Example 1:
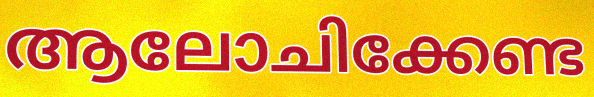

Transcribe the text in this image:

ആലോചിക്കേണ്ട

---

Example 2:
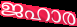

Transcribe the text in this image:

ജഹാര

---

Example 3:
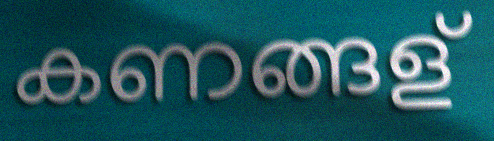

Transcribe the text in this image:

കണങ്ങള്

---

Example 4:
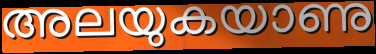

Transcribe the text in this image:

അലയുകയാണു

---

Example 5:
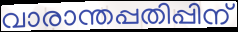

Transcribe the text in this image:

വാരാന്തപ്പതിപ്പിന്